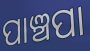
ପାଞ୍ଚପା